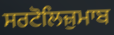
ਸਰਟੋਲਿਜ਼ੁਮਾਬ